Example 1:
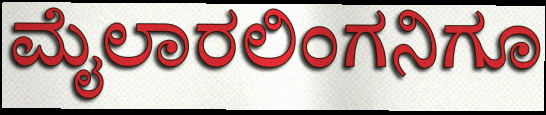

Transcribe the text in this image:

ಮೈಲಾರಲಿಂಗನಿಗೂ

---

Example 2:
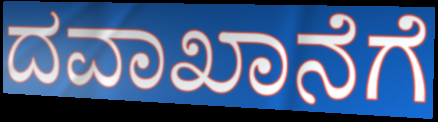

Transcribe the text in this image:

ದವಾಖಾನೆಗೆ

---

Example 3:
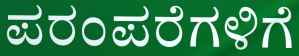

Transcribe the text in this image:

ಪರಂಪರೆಗಳಿಗೆ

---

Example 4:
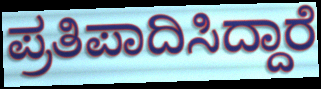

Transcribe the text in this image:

ಪ್ರತಿಪಾದಿಸಿದ್ದಾರೆ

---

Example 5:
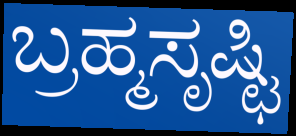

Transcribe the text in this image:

ಬ್ರಹ್ಮಸೃಷ್ಟಿ